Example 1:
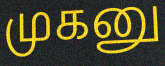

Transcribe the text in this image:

முகனு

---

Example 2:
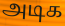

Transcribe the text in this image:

அடிக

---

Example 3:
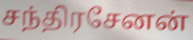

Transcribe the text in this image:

சந்திரசேனன்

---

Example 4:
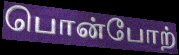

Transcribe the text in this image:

பொன்போற்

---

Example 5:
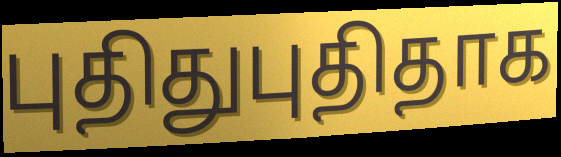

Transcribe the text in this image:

புதிதுபுதிதாக